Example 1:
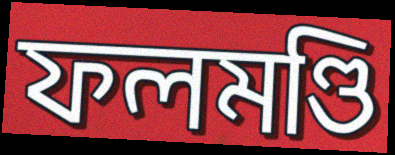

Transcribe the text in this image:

ফলমণ্ডি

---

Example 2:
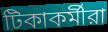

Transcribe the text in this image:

টিকাকর্মীরা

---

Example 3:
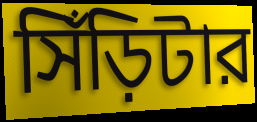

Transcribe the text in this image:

সিঁড়িটার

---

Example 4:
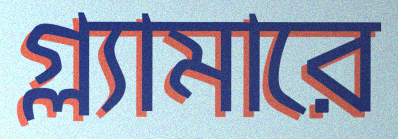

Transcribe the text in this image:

গ্ল্যামারে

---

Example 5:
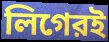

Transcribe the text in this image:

লিগেরই